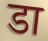
डा